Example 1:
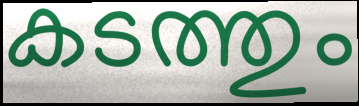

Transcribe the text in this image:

കടത്തും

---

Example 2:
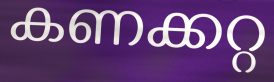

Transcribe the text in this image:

കണക്കറ്റ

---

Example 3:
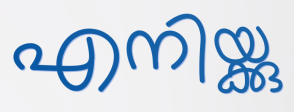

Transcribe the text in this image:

എനിയ്ക്കു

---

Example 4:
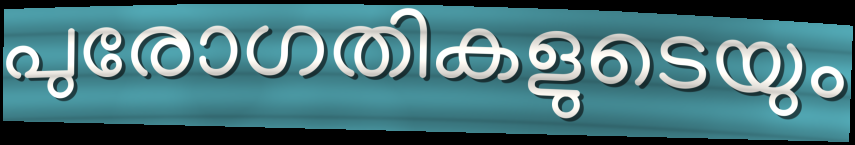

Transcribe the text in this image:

പുരോഗതികളുടെയും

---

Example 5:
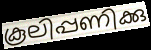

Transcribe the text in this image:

കൂലിപ്പണിക്കു